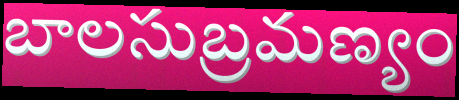
బాలసుబ్రమణ్యం